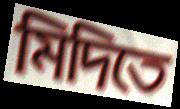
মিদিতে